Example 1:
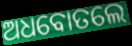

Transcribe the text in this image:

ଅଧବୋତଲେ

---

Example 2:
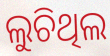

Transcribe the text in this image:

ଲୁଚିଥିଲ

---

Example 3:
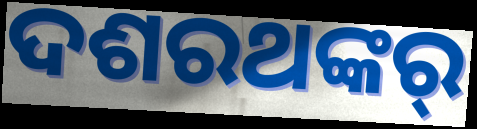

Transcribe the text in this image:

ଦଶରଥଙ୍କର୍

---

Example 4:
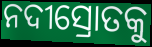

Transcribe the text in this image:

ନଦୀସ୍ରୋତକୁ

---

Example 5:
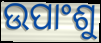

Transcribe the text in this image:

ଉପାଂଶୁ